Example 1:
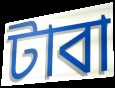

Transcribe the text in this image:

টাবা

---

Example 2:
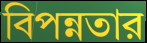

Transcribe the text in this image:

বিপন্নতার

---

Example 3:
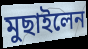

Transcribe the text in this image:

মুছাইলেন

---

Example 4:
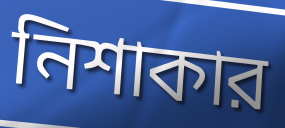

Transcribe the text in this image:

নিশাকার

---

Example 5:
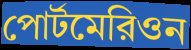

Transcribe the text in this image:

পোর্টমেরিওন